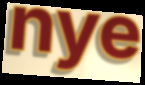
nye